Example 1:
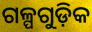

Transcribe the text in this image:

ଗଳ୍ପଗୁଡ଼ିକ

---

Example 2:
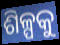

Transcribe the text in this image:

ଶିଳ୍ପକୁ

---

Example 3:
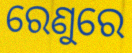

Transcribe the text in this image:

ରେଣୁରେ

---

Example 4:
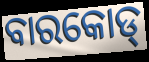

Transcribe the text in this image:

ବାରକୋଡ୍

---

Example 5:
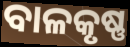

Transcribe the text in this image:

ବାଳକୃଷ୍ଣ